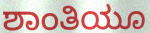
ಶಾಂತಿಯೂ